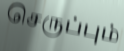
செருப்பும்